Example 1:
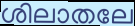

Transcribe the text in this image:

ശിലാതലേ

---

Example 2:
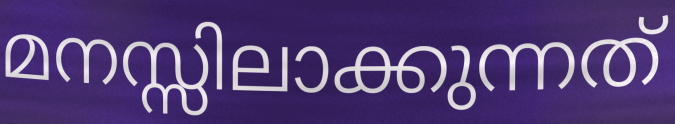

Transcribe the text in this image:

മനസ്സിലാക്കുന്നത്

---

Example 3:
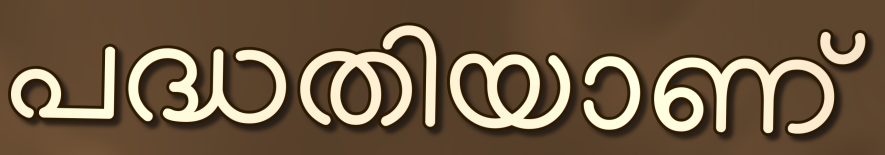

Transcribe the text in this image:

പദ്ധതിയാണ്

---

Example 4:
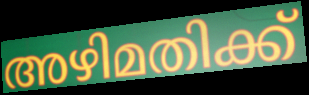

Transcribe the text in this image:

അഴിമതിക്ക്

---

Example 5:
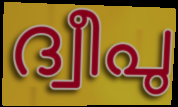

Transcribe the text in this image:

ദ്വീപു